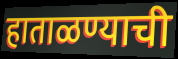
हाताळण्याची